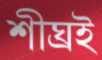
শীঘ্রই